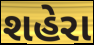
શહેરા